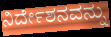
ನಿರ್ದೇಶನವನ್ನು